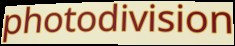
photodivision